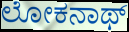
ಲೋಕನಾಥ್